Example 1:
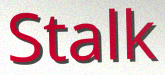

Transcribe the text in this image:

Stalk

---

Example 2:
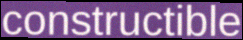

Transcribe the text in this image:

constructible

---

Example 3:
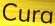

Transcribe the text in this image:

Cura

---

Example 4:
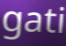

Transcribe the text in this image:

gati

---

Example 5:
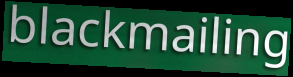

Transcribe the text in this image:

blackmailing